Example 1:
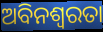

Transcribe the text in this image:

ଅବିନଶ୍ୱରତା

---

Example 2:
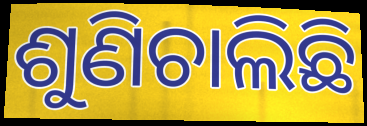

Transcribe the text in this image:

ଶୁଣିଚାଲିଛି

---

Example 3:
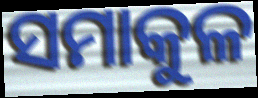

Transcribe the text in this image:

ସମାକୁଳ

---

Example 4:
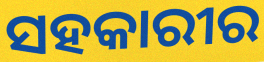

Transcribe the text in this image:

ସହକାରୀର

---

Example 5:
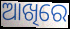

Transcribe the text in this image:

ଆଖିରେ